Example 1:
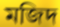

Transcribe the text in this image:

মজিদ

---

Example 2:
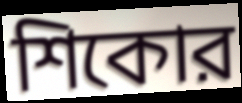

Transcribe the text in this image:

শিকোর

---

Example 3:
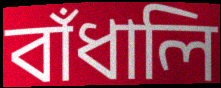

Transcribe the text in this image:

বাঁধালি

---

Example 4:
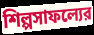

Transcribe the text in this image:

শিল্পসাফল্যের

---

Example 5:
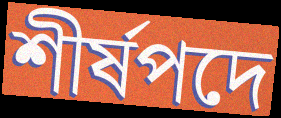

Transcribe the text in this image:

শীর্ষপদে